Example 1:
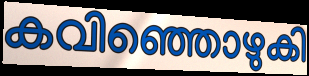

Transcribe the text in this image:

കവിഞ്ഞൊഴുകി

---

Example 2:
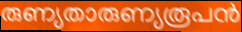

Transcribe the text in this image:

രുണ്യതാരുണ്യരൂപൻ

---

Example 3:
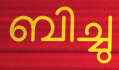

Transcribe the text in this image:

ബിച്ചു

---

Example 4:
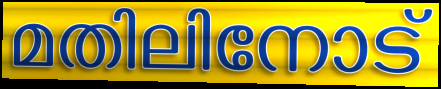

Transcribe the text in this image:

മതിലിനോട്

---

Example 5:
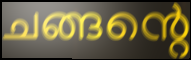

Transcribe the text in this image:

ചങ്ങന്റെ